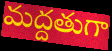
మద్దతుగా